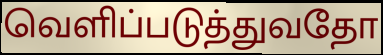
வெளிப்படுத்துவதோ